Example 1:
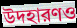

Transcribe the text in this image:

উদহারণও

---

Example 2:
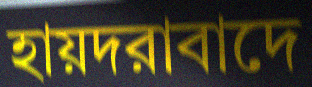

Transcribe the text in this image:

হায়দরাবাদে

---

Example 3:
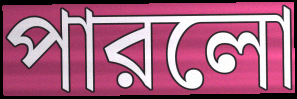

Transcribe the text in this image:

পারলো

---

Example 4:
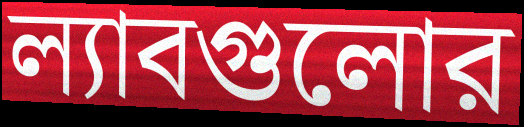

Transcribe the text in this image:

ল্যাবগুলোর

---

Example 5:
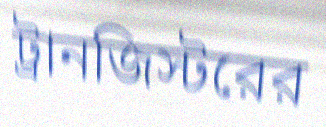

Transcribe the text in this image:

ট্রানজিস্টরের